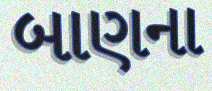
બાણના